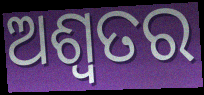
ଅଶ୍ୱତର